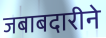
जबाबदारीने